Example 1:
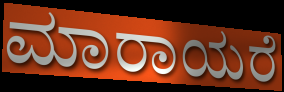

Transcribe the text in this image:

ಮಾರಾಯರೆ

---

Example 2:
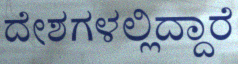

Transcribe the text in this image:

ದೇಶಗಳಲ್ಲಿದ್ದಾರೆ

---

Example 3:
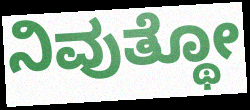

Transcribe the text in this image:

ನಿವುತ್ಥೋ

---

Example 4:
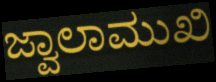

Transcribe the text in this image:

ಜ್ವಾಲಾಮುಖಿ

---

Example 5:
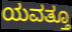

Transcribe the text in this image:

ಯವತ್ತೂ